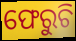
ଫେରୁଚି